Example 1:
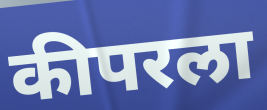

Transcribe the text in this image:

कीपरला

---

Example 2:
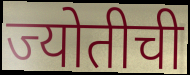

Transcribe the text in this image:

ज्योतीची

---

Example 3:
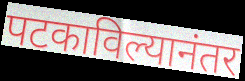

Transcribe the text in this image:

पटकाविल्यानंतर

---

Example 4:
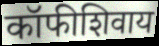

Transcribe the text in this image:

कॉफीशिवाय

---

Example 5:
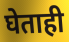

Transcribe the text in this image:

घेताही